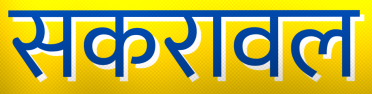
सकरावल